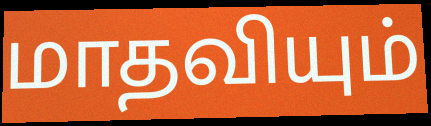
மாதவியும்